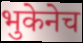
भुकेनेच